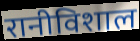
रानीविशाल